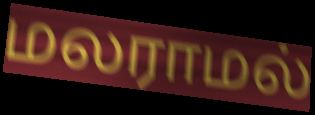
மலராமல்